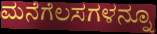
ಮನೆಗೆಲಸಗಳನ್ನೂ